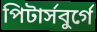
পিটাৰ্সবুৰ্গে